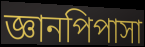
জ্ঞানপিপাসা